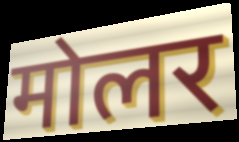
मोलर